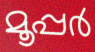
മൂപ്പർ